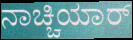
ನಾಚ್ಚಿಯಾರ್